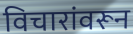
विचारांवरून